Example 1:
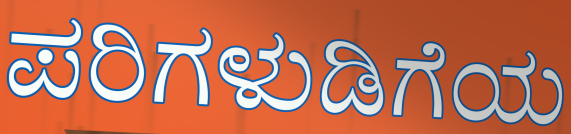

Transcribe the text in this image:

ಪರಿಗಳುಡಿಗೆಯ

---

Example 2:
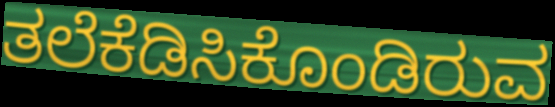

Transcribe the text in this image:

ತಲೆಕೆಡಿಸಿಕೊಂಡಿರುವ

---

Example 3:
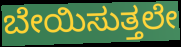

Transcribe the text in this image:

ಬೇಯಿಸುತ್ತಲೇ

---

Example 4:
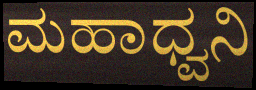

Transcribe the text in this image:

ಮಹಾಧ್ವನಿ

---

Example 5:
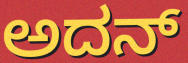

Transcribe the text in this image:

ಅದನ್